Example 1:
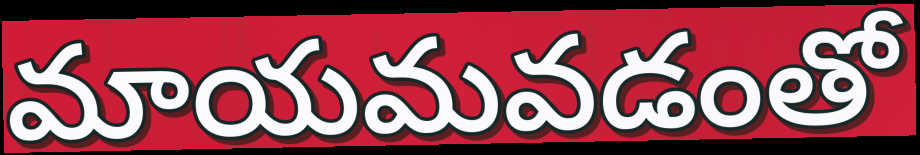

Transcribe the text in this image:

మాయమవడంతో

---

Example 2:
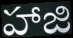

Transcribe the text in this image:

హాజి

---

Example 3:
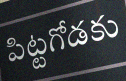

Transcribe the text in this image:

పిట్టగోడకు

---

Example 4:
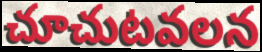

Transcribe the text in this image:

చూచుటవలన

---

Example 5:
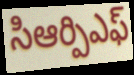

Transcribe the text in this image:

సిఆర్పిఎఫ్